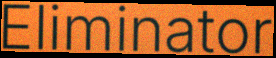
Eliminator